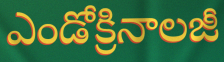
ఎండోక్రినాలజీ